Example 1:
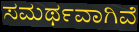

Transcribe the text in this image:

ಸಮರ್ಥವಾಗಿವೆ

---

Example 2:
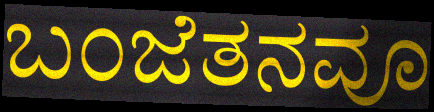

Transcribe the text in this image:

ಬಂಜೆತನವೂ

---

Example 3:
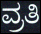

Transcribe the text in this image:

ವ್ರತಿ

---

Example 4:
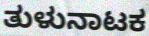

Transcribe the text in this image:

ತುಳುನಾಟಕ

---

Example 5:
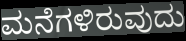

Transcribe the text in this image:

ಮನೆಗಳಿರುವುದು